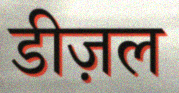
डीज़ल